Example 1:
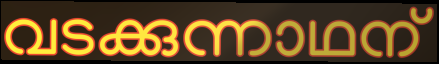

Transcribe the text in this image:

വടക്കുന്നാഥന്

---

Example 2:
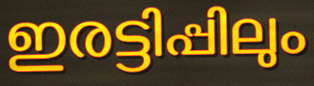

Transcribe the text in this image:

ഇരട്ടിപ്പിലും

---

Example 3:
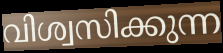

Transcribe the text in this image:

വിശ്വസിക്കുന്ന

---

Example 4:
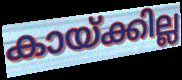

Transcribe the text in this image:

കായ്ക്കില്ല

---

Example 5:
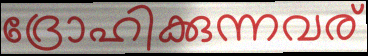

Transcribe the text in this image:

ദ്രോഹിക്കുന്നവര്